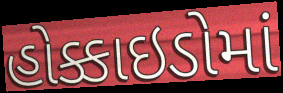
હોક્કાઇડોમાં